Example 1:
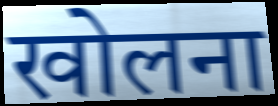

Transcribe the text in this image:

खोलना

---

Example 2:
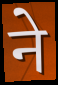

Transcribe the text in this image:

ने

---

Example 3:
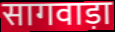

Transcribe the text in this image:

सागवाड़ा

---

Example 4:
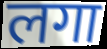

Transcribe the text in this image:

लगा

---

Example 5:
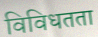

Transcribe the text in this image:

विविधतता